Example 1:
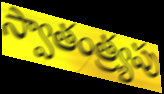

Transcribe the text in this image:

స్వాతంత్ర్యపు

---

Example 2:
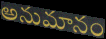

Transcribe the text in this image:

అనుమానం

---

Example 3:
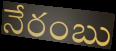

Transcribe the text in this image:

నేరంబు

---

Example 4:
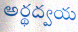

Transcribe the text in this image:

అర్థద్వయ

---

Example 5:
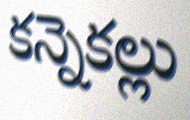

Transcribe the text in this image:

కన్నెకల్లు